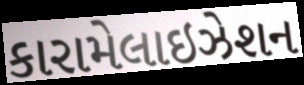
કારામેલાઇઝેશન